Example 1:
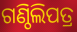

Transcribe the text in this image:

ଗଣ୍ଠିଲିପତ୍ର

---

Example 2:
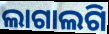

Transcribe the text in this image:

ଲାଗାଲଗି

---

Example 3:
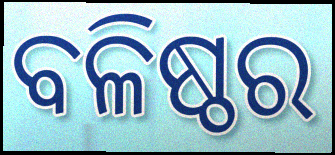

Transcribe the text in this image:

ବଳିଷ୍ଠର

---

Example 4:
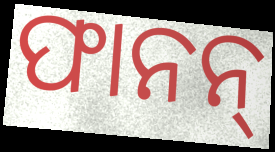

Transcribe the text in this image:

ଫାନନ୍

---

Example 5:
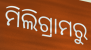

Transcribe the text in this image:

ମିଲିଗ୍ରାମରୁ